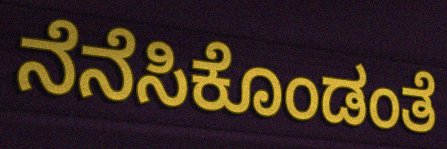
ನೆನೆಸಿಕೊಂಡಂತೆ